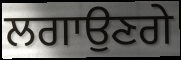
ਲਗਾਉਣਗੇ